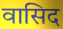
वासिद